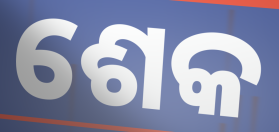
ଶେକ